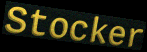
Stocker